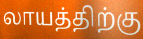
லாயத்திற்கு